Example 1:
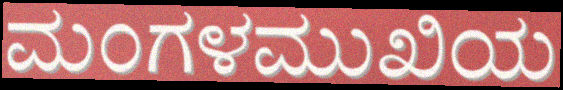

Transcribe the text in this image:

ಮಂಗಳಮುಖಿಯ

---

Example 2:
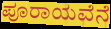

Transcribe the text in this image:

ಪೂರಾಯವೆನೆ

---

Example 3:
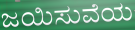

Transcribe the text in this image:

ಜಯಿಸುವೆಯ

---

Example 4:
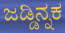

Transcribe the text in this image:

ಜಡ್ಡಿನ್ನಕ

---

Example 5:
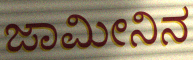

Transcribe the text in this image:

ಜಾಮೀನಿನ